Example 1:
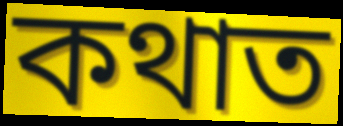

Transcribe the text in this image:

কথাত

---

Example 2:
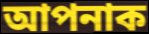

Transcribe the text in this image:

আপনাক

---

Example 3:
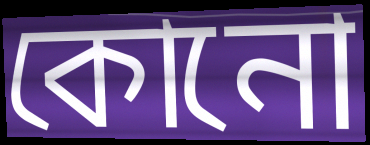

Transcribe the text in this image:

কোনো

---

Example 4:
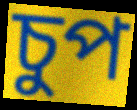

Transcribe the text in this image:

চুপ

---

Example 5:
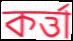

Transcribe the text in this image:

কৰ্ত্তা